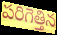
పరిగెత్తిన